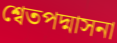
শ্বেতপদ্মাসনা